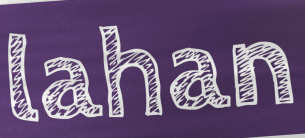
lahan